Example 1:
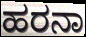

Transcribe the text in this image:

ಹರನಾ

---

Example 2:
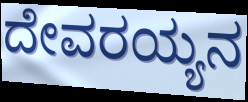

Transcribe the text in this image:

ದೇವರಯ್ಯನ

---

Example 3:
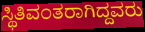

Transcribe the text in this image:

ಸ್ಥಿತಿವಂತರಾಗಿದ್ದವರು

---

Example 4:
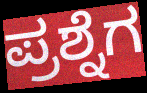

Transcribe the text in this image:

ಪ್ರಶ್ನೆಗ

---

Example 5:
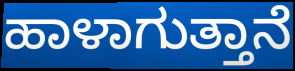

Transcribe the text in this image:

ಹಾಳಾಗುತ್ತಾನೆ